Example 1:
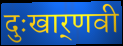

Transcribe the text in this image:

दुःखार्णवी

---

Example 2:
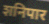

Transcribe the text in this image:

शनिपार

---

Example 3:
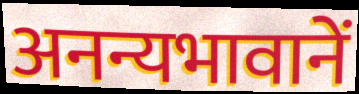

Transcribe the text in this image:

अनन्यभावानें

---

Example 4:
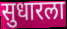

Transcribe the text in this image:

सुधारला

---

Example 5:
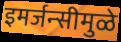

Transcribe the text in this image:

इमर्जन्सीमुळे